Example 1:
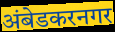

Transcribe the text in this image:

अंबेडकरनगर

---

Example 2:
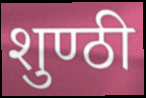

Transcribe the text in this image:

शुण्ठी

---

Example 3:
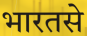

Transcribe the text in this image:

भारतसे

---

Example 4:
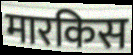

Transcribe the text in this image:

मारकिस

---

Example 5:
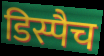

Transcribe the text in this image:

डिस्‍पैच